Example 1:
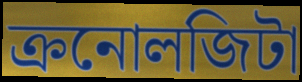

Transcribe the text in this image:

ক্রনোলজিটা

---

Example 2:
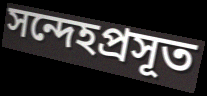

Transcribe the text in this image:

সন্দেহপ্রসূত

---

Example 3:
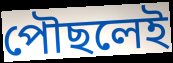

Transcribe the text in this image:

পৌছলেই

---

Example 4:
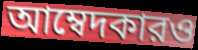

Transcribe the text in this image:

আম্বেদকারও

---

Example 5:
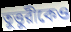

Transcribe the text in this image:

তুত্তুরীকেও